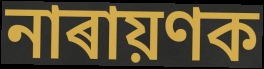
নাৰায়ণক